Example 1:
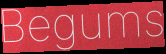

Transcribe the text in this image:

Begums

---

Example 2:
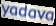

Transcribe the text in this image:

yadava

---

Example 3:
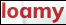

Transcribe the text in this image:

loamy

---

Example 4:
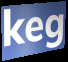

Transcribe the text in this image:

keg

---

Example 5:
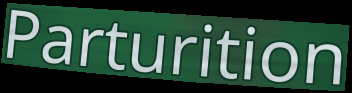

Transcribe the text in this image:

Parturition